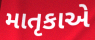
માતૃકાએ